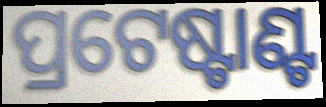
ପ୍ରଟେଷ୍ଟାଣ୍ଟ